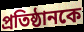
প্রতিষ্ঠানকে